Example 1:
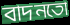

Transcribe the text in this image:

বাদনতো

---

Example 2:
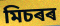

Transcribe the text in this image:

মিচৰৰ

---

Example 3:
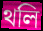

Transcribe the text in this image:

থলি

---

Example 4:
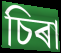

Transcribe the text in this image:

চিৰা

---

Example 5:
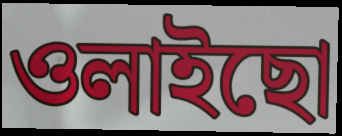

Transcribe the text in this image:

ওলাইছো